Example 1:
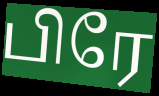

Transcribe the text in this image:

பிரே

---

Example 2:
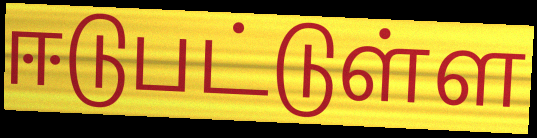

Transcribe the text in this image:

ஈடுபட்டுள்ள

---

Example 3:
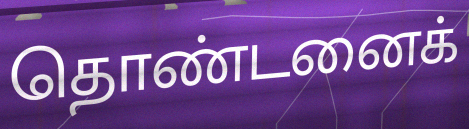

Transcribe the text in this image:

தொண்டனைக்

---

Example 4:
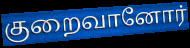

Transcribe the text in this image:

குறைவானோர்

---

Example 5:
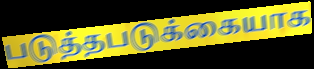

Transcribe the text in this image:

படுத்தபடுக்கையாக